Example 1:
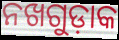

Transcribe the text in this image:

ନଖଗୁଡ଼ାକ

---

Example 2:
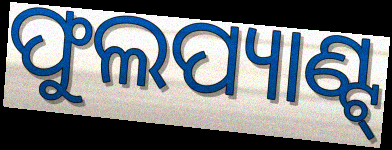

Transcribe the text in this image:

ଫୁଲପ୍ୟାଣ୍ଟ୍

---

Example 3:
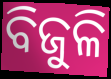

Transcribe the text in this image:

ବିଜୁଳି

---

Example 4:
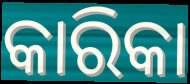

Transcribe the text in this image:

କାରିକା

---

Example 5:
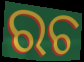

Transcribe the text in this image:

ରଚ